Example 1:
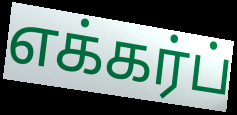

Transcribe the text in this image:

எக்கர்ப்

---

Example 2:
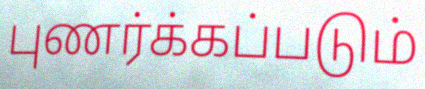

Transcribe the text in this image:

புணர்க்கப்படும்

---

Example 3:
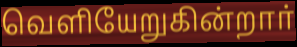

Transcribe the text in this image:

வெளியேறுகின்றார்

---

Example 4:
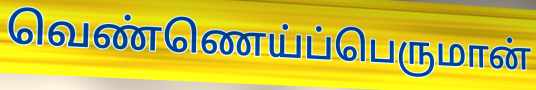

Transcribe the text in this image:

வெண்ணெய்ப்பெருமான்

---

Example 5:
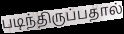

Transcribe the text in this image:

படிந்திருப்பதால்